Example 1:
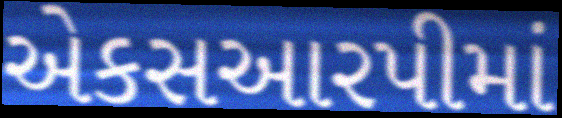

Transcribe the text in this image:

એકસઆરપીમાં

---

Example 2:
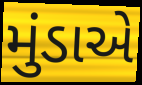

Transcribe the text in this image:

મુંડાએ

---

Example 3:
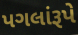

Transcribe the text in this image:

પગલાંરૂપે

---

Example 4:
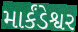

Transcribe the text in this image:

માર્કંડેશ્વર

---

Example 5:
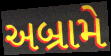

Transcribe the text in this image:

અબ્રામે